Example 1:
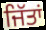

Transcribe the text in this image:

ਜਿੱਤਾਂ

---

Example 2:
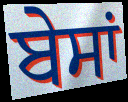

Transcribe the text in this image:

ਬੇਸਾਂ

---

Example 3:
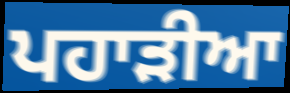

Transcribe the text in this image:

ਪਹਾੜੀਆ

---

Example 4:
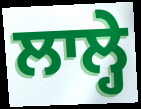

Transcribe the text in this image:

ਲਾਲ੍ਹੇ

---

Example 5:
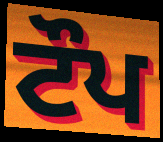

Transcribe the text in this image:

ਟੌਪ